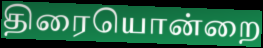
திரையொன்றை